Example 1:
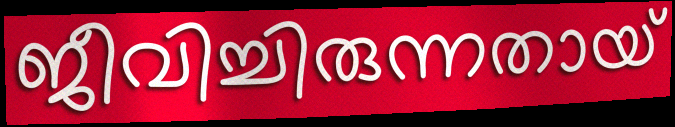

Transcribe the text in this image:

ജീവിച്ചിരുന്നതായ്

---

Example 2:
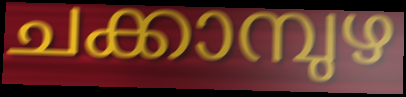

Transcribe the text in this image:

ചക്കാമ്പുഴ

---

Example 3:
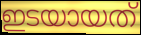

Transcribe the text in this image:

ഇടയായത്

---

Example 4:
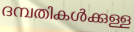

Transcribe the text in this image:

ദമ്പതികൾക്കുള്ള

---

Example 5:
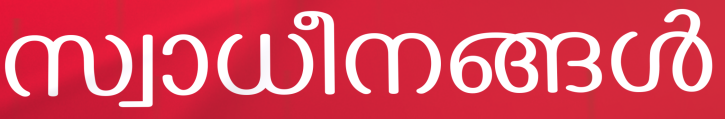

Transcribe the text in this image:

സ്വാധീനങ്ങൾ